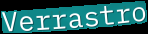
Verrastro